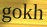
gokh